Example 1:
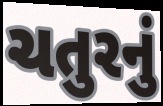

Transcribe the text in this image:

ચતુરનું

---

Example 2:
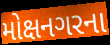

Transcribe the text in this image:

મોક્ષનગરના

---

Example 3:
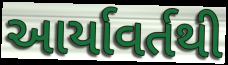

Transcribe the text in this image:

આર્યાવર્તથી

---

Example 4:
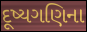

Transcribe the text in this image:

દૂષ્યગણિના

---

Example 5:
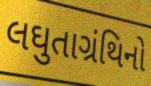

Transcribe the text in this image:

લઘુતાગ્રંથિનો